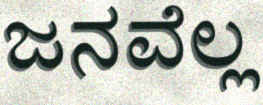
ಜನವೆಲ್ಲ